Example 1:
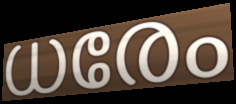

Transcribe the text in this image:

ധരേം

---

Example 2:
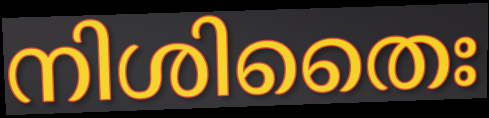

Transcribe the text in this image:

നിശിതൈഃ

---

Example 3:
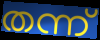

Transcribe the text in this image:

തന്ന്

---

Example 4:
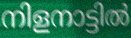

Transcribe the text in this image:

നിളനാട്ടിൽ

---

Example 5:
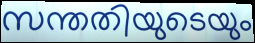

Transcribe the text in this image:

സന്തതിയുടെയും